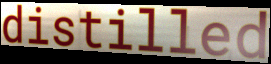
distilled